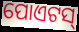
ପୋଏଟସ୍